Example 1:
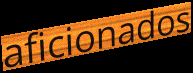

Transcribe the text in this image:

aficionados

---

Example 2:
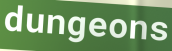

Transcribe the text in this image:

dungeons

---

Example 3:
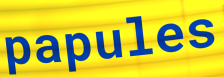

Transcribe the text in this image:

papules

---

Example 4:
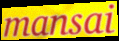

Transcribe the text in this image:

mansai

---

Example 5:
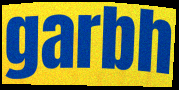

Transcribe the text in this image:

garbh